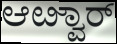
ಆೞ್ವಾರ್